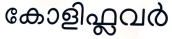
കോളിഫ്ലവർ